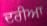
ਦਰੀਆ